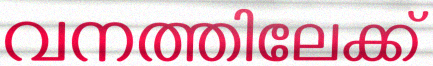
വനത്തിലേക്ക്